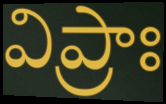
విప్రాః